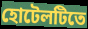
হোটেলটিতে